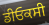
ਡੀਓਕਸੀ